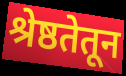
श्रेष्ठतेतून